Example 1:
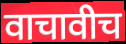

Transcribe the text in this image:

वाचावीच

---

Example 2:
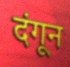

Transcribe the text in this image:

दंगून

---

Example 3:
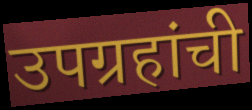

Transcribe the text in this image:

उपग्रहांची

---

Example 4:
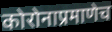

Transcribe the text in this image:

कोरोनाप्रमाणेच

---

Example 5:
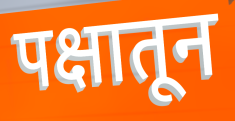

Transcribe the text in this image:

पक्षातून